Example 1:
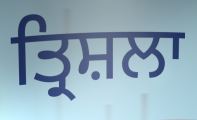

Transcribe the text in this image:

ਤ੍ਰਿਸ਼ਲਾ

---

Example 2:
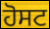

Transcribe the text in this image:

ਹੋਸਟ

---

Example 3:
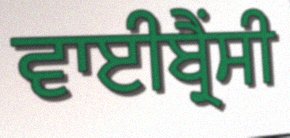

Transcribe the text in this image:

ਵਾਈਬ੍ਰੈਂਸੀ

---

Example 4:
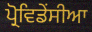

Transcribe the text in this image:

ਪ੍ਰੋਵਿਡੇਂਸੀਆ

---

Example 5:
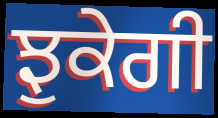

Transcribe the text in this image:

ਝੁਕੇਗੀ